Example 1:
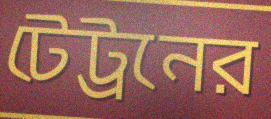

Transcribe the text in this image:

টেট্রনের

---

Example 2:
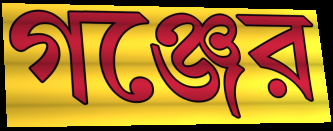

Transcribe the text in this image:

গঞ্জের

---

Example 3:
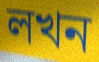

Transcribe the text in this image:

লখন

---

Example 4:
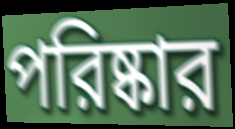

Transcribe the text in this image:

পরিষ্কার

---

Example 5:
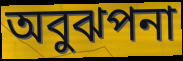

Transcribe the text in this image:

অবুঝপনা